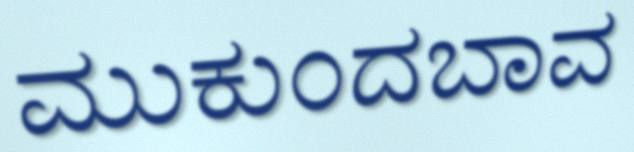
ಮುಕುಂದಬಾವ